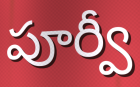
పూర్వీ